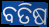
ବତିଷ